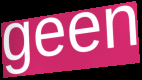
geen